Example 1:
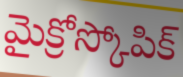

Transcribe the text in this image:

మైక్రోస్కోపిక్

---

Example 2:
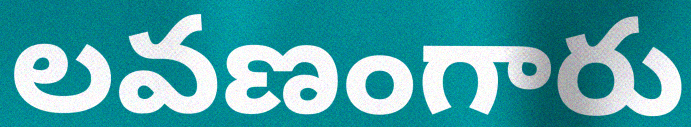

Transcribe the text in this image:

లవణంగారు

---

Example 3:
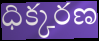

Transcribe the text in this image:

ధిక్కరణ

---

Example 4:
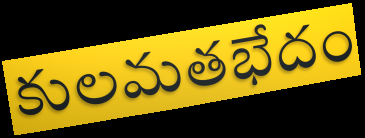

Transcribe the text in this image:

కులమతభేదం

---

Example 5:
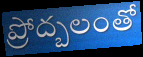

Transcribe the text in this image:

ప్రోద్బలంతో